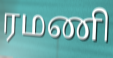
ரமணி